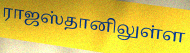
ராஜஸ்தானிலுள்ள